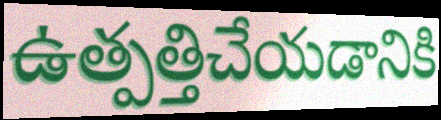
ఉత్పత్తిచేయడానికి